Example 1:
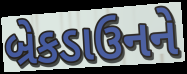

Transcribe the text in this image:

બ્રેકડાઉનને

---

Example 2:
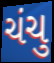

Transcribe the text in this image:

ચંચુ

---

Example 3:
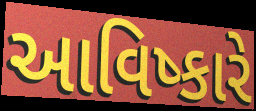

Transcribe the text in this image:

આવિષ્કારે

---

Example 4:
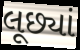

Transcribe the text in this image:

લૂછ્યાં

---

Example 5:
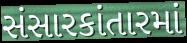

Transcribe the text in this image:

સંસારકાંતારમાં